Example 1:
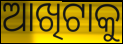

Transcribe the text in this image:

ଆଖିଟାକୁ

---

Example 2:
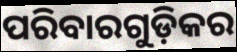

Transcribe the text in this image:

ପରିବାରଗୁଡ଼ିକର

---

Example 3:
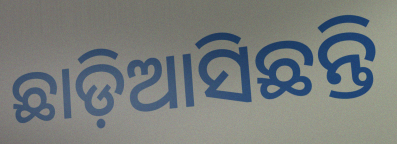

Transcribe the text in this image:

ଛାଡ଼ିଆସିଛନ୍ତି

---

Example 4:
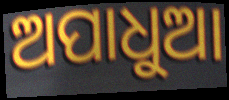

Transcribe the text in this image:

ଅପାଧୁଆ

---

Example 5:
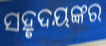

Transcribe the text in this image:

ସହୃଦୟଙ୍କର